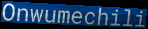
Onwumechili